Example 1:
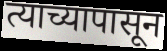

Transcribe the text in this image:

त्याच्यापासून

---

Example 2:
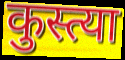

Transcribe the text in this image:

कुस्त्या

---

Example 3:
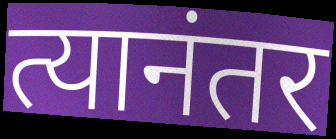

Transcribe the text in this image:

त्यानंतर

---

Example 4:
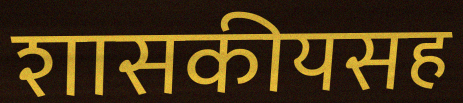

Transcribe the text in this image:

शासकीयसह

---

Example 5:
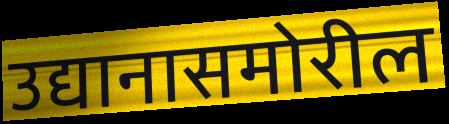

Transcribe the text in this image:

उद्यानासमोरील